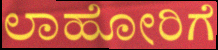
ಲಾಹೋರಿಗೆ